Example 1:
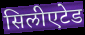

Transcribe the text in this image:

सिलीएटेड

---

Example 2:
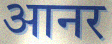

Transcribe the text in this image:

आनर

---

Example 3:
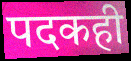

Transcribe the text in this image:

पदकही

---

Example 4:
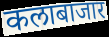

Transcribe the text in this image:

कलाबाजार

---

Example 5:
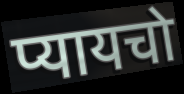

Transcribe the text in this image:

प्यायचो